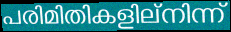
പരിമിതികളില്നിന്ന്